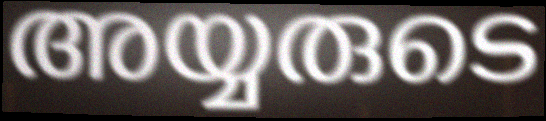
അയ്യരുടെ